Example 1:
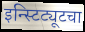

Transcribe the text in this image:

इन्स्टिट्यूटचा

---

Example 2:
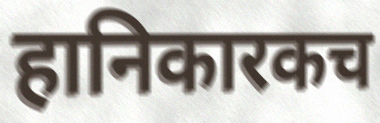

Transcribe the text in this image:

हानिकारकच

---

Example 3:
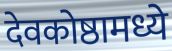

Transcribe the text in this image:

देवकोष्ठामध्ये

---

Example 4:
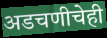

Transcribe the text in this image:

अडचणीचेही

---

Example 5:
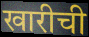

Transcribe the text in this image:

खारीची